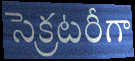
సెక్రటరీగా